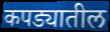
कपड्यातील